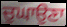
ਚੁਘਾਉਣਾ